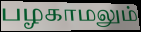
பழகாமலும்